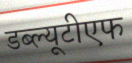
डब्ल्यूटीएफ